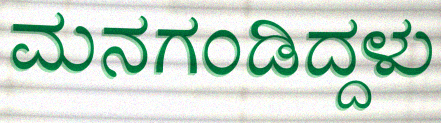
ಮನಗಂಡಿದ್ದಳು